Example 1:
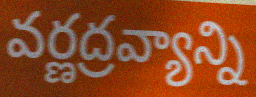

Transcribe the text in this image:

వర్ణద్రవ్యాన్ని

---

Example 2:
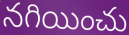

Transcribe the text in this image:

నగియించు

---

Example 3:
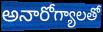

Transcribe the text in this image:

అనారోగ్యాలతో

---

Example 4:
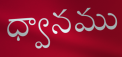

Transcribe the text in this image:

ధ్వానము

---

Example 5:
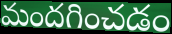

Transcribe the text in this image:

మందగించడం